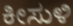
ಕೀಸುಳಿ